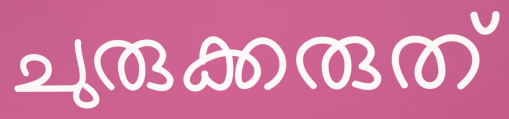
ചുരുക്കരുത്